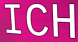
ICH